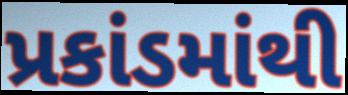
પ્રકાંડમાંથી